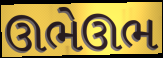
ઊભેઊભ